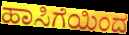
ಹಾಸಿಗೆಯಿಂದ